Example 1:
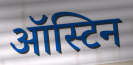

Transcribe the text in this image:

ऑस्टिन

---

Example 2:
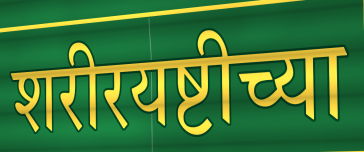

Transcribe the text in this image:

शरीरयष्टीच्या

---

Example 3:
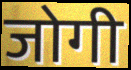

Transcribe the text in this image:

जोगी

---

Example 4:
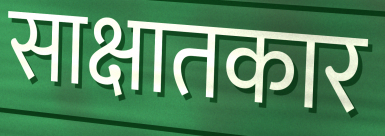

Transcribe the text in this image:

साक्षातकार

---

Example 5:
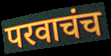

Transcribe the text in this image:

परवाचंच